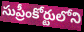
సుప్రీంకోర్టులోని